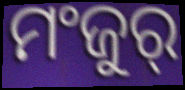
ମଂଜୁର୍